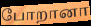
போறானா